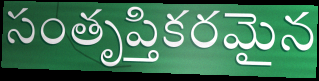
సంతృప్తికరమైన